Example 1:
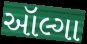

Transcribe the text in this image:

ઑલ્ગા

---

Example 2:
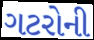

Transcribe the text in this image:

ગટરોની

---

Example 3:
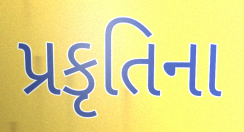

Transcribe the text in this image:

પ્રકૃતિના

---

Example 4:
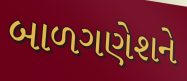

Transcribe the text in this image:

બાળગણેશને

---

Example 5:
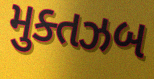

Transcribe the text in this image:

મુક્તઝબ